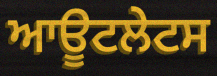
ਆਊਟਲੇਟਸ